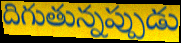
దిగుతున్నప్పుడు